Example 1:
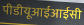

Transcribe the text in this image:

पीडीयूआईआईसी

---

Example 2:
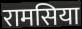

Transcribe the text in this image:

रामसिया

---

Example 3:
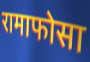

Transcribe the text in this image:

रामाफोसा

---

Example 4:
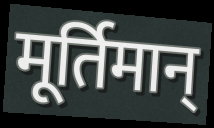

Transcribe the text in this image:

मूर्तिमान्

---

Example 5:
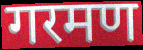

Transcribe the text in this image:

गरमण